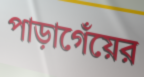
পাড়াগেঁয়ের